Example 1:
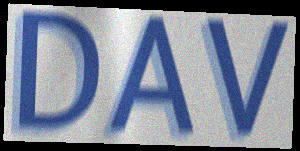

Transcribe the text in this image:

DAV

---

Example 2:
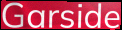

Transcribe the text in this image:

Garside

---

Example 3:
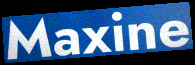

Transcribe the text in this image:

Maxine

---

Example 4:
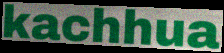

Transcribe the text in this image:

kachhua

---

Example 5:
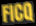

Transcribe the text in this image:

FICQ